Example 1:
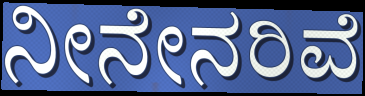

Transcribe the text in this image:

ನೀನೇನರಿವೆ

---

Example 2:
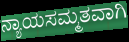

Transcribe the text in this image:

ನ್ಯಾಯಸಮ್ಮತವಾಗಿ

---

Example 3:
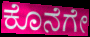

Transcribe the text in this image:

ಕೊನೆಗೇ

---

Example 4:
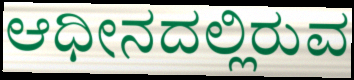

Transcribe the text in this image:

ಆಧೀನದಲ್ಲಿರುವ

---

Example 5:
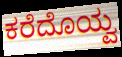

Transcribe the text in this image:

ಕರೆದೊಯ್ವ